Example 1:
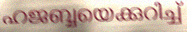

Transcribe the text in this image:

ഹജബ്ബയെക്കുറിച്ച്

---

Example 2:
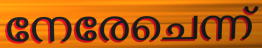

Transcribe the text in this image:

നേരേചെന്ന്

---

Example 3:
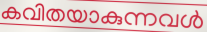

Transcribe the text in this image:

കവിതയാകുന്നവൾ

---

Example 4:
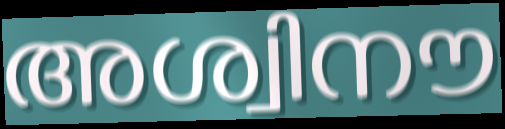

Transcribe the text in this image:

അശ്വിനൗ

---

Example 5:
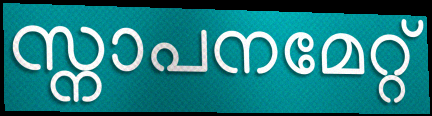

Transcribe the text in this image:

സ്നാപനമേറ്റ്